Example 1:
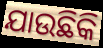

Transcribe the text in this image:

ଯାଉଛିକି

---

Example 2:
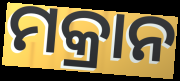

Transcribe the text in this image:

ମକ୍ରାନ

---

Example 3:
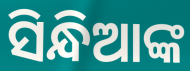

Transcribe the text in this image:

ସିନ୍ଧିଆଙ୍କ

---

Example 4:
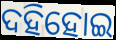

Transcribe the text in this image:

ଦହିହୋଇ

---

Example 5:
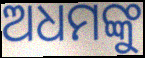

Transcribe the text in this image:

ଅଧମଙ୍କୁ